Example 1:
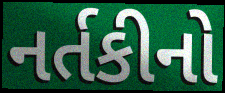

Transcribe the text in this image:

નર્તકીનો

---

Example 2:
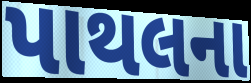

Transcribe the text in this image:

પાથલના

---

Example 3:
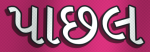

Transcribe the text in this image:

પાછલ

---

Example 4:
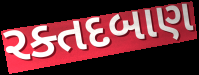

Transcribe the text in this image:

રક્તદબાણ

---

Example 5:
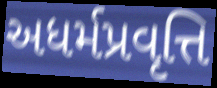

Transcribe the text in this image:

અધર્મપ્રવૃત્તિ